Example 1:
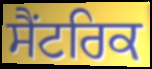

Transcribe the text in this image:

ਸੈਂਟਰਿਕ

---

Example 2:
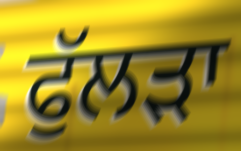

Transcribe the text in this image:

ਫੁੱਲੜਾ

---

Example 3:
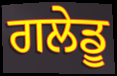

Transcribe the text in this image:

ਗਲੇਡੂ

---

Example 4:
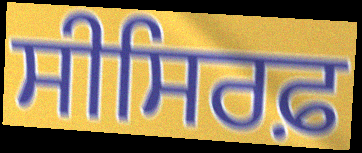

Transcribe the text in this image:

ਸੀਸਿਰਫ਼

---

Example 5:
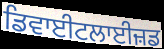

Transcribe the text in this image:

ਡਿਵਾਈਟਲਾਈਜ਼ਡ